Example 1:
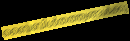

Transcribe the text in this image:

ബൈബിൾതത്ത്വങ്ങൾക്കു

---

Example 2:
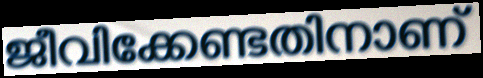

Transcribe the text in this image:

ജീവിക്കേണ്ടതിനാണ്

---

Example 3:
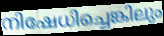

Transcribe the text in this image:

നിഷേധിച്ചെങ്കിലും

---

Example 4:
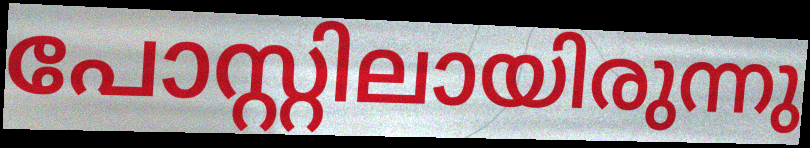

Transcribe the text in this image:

പോസ്റ്റിലായിരുന്നു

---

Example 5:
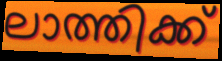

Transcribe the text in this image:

ലാത്തിക്ക്